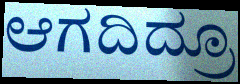
ಆಗದಿದ್ರೂ